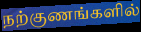
நற்குணங்களில்